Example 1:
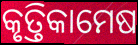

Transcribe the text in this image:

କୃତ୍ତିକାମେଷ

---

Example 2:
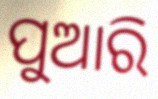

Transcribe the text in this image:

ପୁଆରି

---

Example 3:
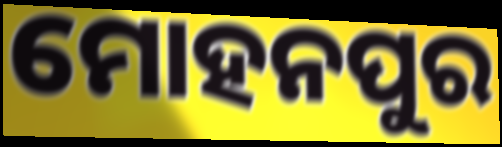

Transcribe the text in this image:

ମୋହନପୁର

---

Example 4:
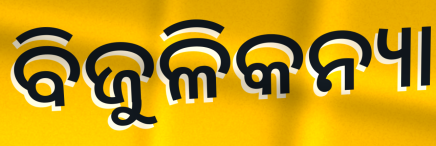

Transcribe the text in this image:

ବିଜୁଳିକନ୍ୟା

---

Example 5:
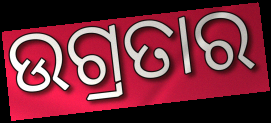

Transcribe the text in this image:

ଉଗ୍ରତାର